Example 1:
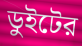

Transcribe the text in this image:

ডুইটের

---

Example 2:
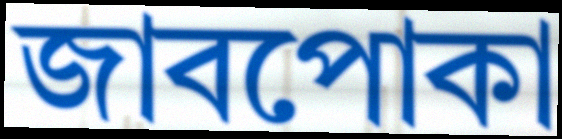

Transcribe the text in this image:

জাবপোকা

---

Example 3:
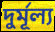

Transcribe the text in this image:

দুর্মূল্য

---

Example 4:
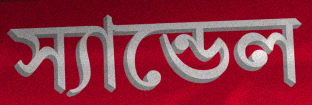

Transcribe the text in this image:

স্যান্ডেল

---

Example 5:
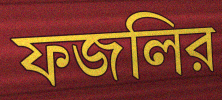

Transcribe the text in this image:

ফজলির